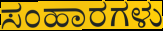
ಸಂಹಾರಗಳು